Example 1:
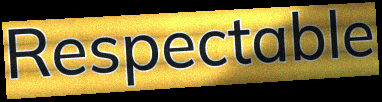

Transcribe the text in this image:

Respectable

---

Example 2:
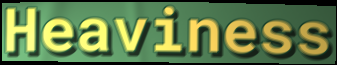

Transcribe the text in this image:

Heaviness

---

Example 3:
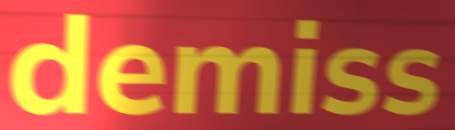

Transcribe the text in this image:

demiss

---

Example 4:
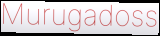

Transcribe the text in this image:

Murugadoss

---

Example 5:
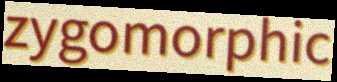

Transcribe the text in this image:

zygomorphic